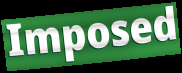
Imposed